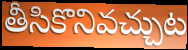
తీసికొనివచ్చుట